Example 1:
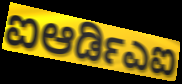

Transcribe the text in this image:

ಐಆರ್ಡಿಎಐ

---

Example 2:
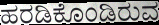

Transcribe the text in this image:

ಹರಡಿಕೊಂಡಿರುವ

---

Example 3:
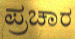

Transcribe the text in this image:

ಪ್ರಚಾರ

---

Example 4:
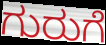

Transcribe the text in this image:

ಗುರುಗೆ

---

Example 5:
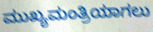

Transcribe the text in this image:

ಮುಖ್ಯಮಂತ್ರಿಯಾಗಲು